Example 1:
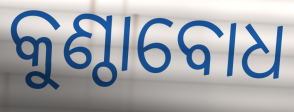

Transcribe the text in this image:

କୁଣ୍ଠାବୋଧ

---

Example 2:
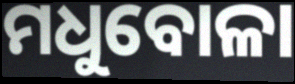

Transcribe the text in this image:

ମଧୁବୋଳା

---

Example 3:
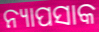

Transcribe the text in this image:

ନ୍ୟାପସାକ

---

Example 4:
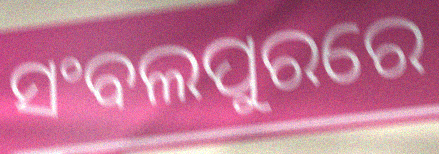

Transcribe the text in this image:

ସଂବଲପୁରରେ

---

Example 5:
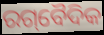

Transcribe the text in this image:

ରଗ୍‌ବୈଦିକ